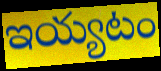
ఇయ్యటం